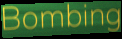
Bombing